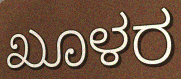
ಖೂಳರ